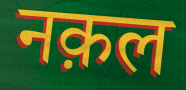
नक़ल